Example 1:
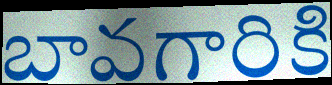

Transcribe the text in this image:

బావగారికి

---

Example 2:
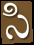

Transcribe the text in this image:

సి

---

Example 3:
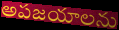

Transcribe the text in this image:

అపజయాలను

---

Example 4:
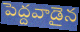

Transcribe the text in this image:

పెద్దవాడైన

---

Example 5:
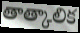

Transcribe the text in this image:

తాత్కాలిక